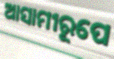
ଆସାମୀରୂପେ